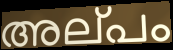
അല്‌പം